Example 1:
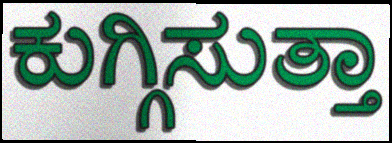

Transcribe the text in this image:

ಕುಗ್ಗಿಸುತ್ತಾ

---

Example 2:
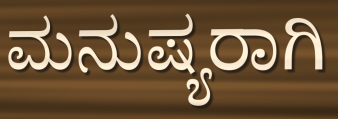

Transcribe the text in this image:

ಮನುಷ್ಯರಾಗಿ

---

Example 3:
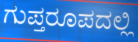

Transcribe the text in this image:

ಗುಪ್ತರೂಪದಲ್ಲಿ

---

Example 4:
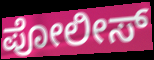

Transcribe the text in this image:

ಪೋಲೀಸ್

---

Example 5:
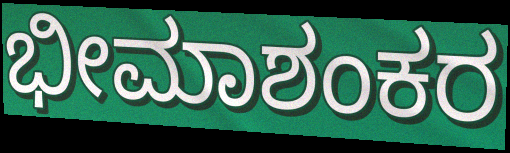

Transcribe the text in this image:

ಭೀಮಾಶಂಕರ